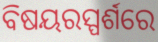
ବିଷୟରସ୍ପର୍ଶରେ